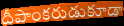
దీపాంకరుడుకూడా